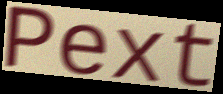
Pext